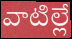
వాటిల్లే